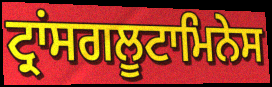
ਟ੍ਰਾਂਸਗਲੂਟਾਮਿਨੇਸ